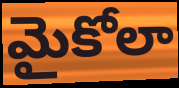
మైకోలా